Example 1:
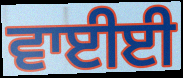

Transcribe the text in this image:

ਵਾਈਈ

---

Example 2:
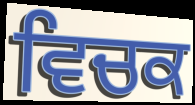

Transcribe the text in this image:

ਵਿਚਕ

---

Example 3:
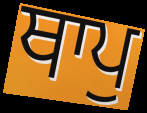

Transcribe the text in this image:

ਥਾਪੁ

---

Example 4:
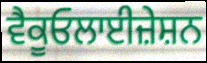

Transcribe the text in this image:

ਵੈਕੂਓਲਾਈਜ਼ੇਸ਼ਨ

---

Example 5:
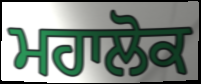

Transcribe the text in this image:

ਮਹਾਲੋਕ